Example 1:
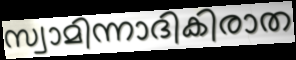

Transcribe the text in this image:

സ്വാമിന്നാദികിരാത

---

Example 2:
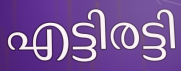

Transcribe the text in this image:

എട്ടിരട്ടി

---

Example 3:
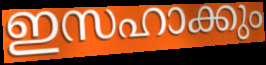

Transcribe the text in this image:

ഇസഹാക്കും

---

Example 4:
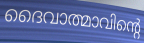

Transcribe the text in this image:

ദൈവാത്മാവിന്റെ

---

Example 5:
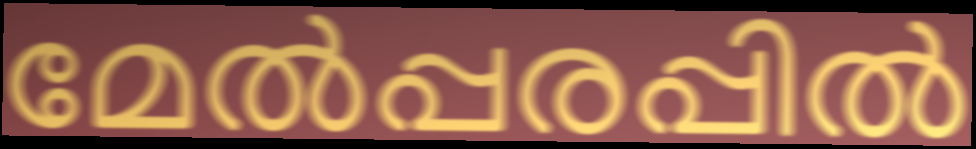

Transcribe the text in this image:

മേൽപ്പരപ്പിൽ